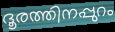
ദൂരത്തിനപ്പുറം